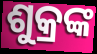
ଶୁକ୍ରଙ୍କ